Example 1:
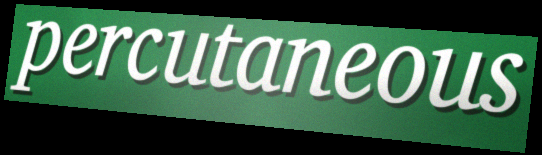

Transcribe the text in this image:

percutaneous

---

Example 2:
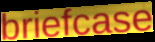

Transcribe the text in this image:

briefcase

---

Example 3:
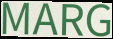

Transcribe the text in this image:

MARG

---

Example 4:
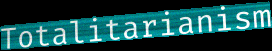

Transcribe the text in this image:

Totalitarianism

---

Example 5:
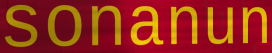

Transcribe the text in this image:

sonanun